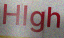
HIgh